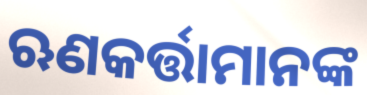
ଋଣକର୍ତ୍ତାମାନଙ୍କ